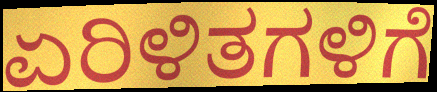
ಏರಿಳಿತಗಳಿಗೆ